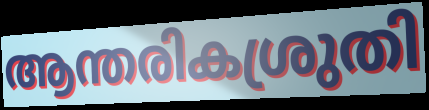
ആന്തരികശ്രുതി